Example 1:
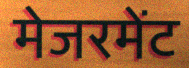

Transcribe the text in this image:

मेजरमेंट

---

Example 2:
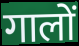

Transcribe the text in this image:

गालों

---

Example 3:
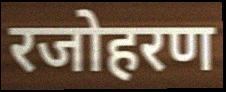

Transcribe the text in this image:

रजोहरण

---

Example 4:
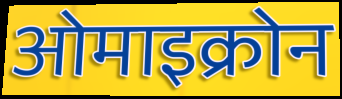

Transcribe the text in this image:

ओमाइक्रोन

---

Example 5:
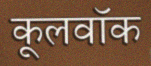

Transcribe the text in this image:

कूलवॉक